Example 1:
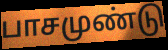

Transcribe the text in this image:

பாசமுண்டு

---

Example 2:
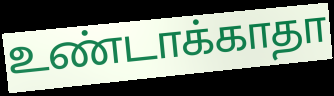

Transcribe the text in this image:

உண்டாக்காதா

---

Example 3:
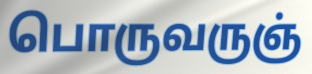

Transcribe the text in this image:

பொருவருஞ்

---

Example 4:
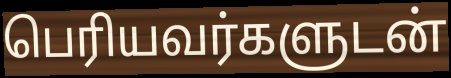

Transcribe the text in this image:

பெரியவர்களுடன்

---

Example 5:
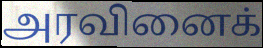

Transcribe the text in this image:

அரவினைக்